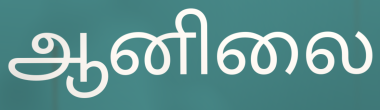
ஆனிலை